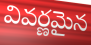
వివర్ణమైన